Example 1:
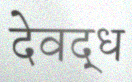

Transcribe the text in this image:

देवद्ध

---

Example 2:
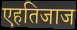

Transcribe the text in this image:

एहतिजाज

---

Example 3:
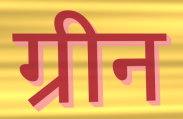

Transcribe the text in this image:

ग्रीन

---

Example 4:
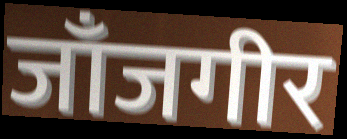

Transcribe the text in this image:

जाँजगीर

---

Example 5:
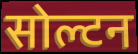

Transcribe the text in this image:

सोल्टन